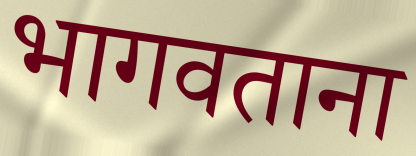
भागवताना